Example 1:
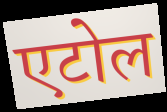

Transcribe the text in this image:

एटोल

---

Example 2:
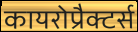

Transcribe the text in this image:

कायरोप्रैक्टर्स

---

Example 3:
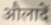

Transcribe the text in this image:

औलादें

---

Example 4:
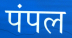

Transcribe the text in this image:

पंपल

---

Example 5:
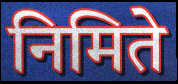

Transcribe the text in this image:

निमिते